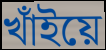
খাঁইয়ে